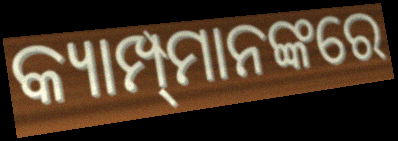
କ୍ୟାମ୍ପ୍‍ମାନଙ୍କରେ